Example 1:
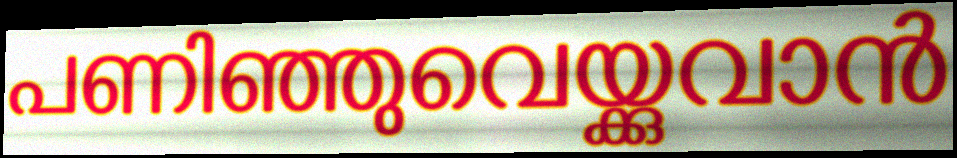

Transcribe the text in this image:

പണിഞ്ഞുവെയ്ക്കുവാൻ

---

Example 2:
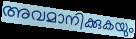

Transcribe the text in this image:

അവമാനിക്കുകയും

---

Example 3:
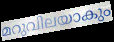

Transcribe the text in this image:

മറുവിലയാകും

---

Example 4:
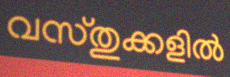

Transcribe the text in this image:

വസ്തുക്കളിൽ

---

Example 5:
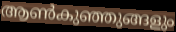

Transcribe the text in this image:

ആൺകുഞ്ഞുങ്ങളും